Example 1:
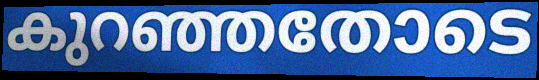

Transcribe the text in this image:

കുറഞ്ഞതോടെ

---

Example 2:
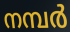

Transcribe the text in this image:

നമ്പർ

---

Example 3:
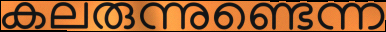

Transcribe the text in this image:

കലരുന്നുണ്ടെന്ന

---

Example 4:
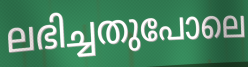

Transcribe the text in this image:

ലഭിച്ചതുപോലെ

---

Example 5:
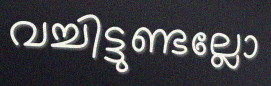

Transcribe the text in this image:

വച്ചിട്ടുണ്ടല്ലോ